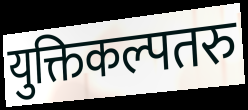
युक्तिकल्पतरु